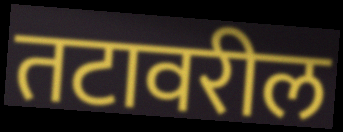
तटावरील